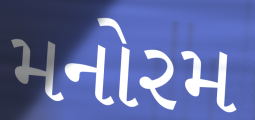
મનોરમ